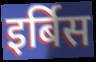
इर्बिस